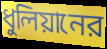
ধুলিয়ানের